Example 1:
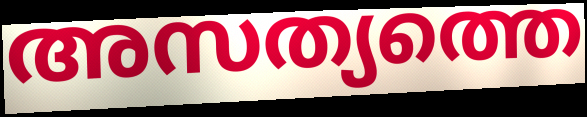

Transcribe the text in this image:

അസത്യത്തെ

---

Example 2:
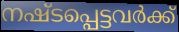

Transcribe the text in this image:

നഷ്ടപ്പെട്ടവർക്ക്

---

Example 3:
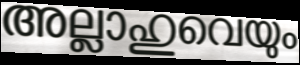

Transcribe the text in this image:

അല്ലാഹുവെയും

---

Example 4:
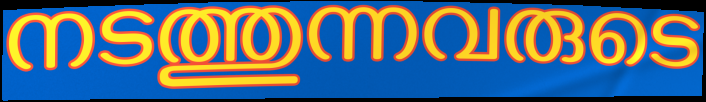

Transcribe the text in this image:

നടത്തുന്നവരുടെ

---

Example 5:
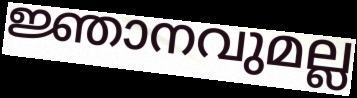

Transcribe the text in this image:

ജ്ഞാനവുമല്ല